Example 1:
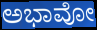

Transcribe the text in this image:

ಅಭಾವೋ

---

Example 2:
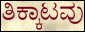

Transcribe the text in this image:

ತಿಕ್ಕಾಟವು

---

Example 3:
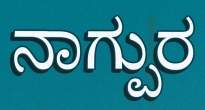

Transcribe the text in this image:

ನಾಗ್ಪುರ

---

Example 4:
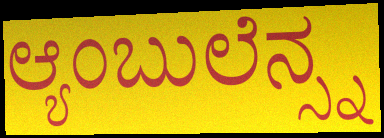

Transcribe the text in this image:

ಆ್ಯಂಬುಲೆನ್ಸ್ನ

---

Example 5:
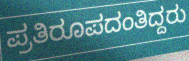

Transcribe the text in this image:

ಪ್ರತಿರೂಪದಂತಿದ್ದರು